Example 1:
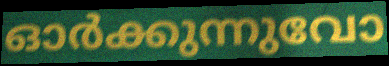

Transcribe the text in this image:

ഓർക്കുന്നുവോ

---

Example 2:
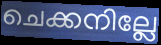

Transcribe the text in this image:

ചെക്കനില്ലേ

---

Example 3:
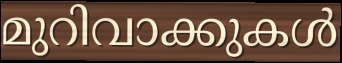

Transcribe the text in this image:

മുറിവാക്കുകൾ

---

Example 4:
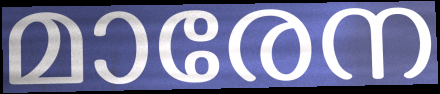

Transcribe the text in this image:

മാരേന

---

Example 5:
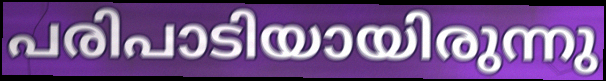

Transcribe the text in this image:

പരിപാടിയായിരുന്നു